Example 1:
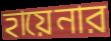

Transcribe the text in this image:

হায়েনার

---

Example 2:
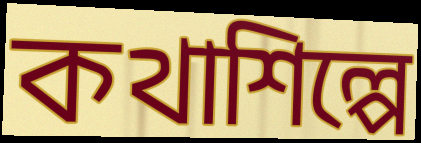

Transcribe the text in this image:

কথাশিল্পে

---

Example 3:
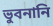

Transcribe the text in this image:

ভুবনানি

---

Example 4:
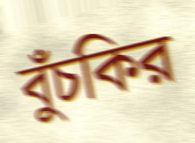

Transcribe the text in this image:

বুঁচকির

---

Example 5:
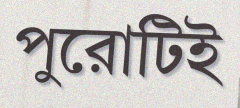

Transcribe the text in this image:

পুরোটিই